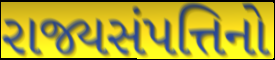
રાજ્યસંપત્તિનો